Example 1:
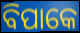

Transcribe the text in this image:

ବିପାକେ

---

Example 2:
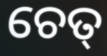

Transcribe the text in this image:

ଚେତ୍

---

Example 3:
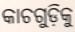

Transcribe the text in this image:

କାଚଗୁଡ଼ିକୁ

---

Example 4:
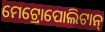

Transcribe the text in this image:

ମେଟ୍ରୋପୋଲିଟାନ୍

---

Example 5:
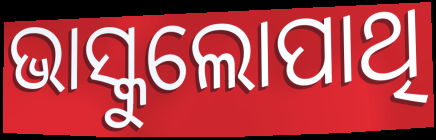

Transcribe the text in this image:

ଭାସ୍କୁଲୋପାଥି